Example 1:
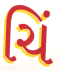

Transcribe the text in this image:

ચિં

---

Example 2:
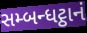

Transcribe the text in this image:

સમ્બન્ધટ્ઠાનં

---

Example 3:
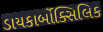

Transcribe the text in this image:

ડાયકાર્બોક્સિલિક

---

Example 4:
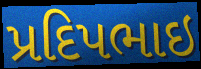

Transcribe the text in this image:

પ્રદિપભાઇ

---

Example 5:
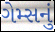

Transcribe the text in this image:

ગેમ્સનું